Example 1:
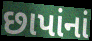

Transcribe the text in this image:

છાપાંનાં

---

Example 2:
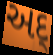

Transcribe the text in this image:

અદ્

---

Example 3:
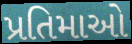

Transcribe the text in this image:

પ્રતિમાઓ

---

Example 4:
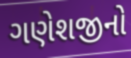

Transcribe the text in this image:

ગણેશજીનો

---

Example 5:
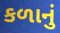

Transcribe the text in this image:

કળાનું